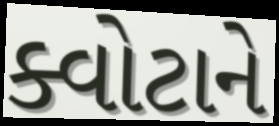
ક્વોટાને